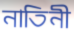
নাতিনী